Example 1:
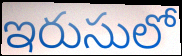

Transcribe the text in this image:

ఇరుసులో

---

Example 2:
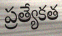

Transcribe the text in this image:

ప్రత్యేకత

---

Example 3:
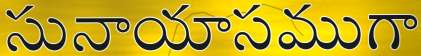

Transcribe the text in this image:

సునాయాసముగా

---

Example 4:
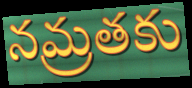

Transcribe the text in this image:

నమ్రతకు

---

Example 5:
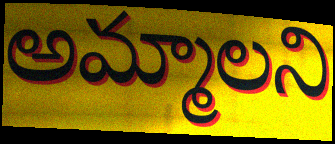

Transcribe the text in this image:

అమ్మాలని